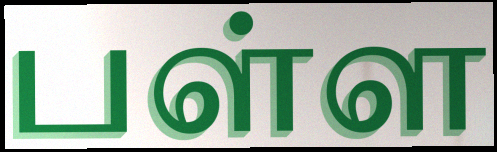
பள்ள